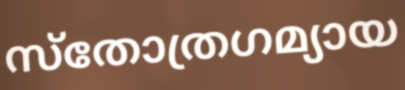
സ്തോത്രഗമ്യായ